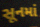
સૂનમાં